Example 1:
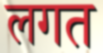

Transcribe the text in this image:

लगत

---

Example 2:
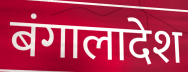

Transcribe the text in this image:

बंगालादेश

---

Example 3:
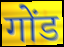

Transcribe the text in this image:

गोंड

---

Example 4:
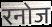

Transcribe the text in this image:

रनोज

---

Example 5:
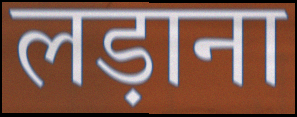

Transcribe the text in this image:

लड़ाना